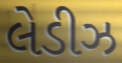
લેડીઝ